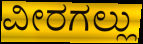
ವೀರಗಲ್ಲು